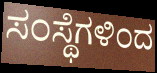
ಸಂಸ್ಥೆಗಳಿಂದ